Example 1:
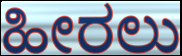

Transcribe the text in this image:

ಹೀರಲು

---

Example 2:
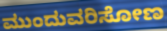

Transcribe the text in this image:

ಮುಂದುವರಿಸೋಣ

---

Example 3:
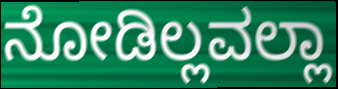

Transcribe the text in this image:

ನೋಡಿಲ್ಲವಲ್ಲಾ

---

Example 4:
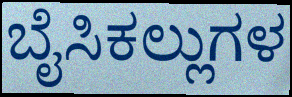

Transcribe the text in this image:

ಬೈಸಿಕಲ್ಲುಗಳ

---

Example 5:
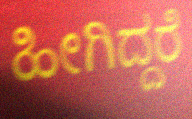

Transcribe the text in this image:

ಹೀಗಿದ್ದರೆ